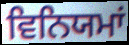
ਵਿਨਿਯਮਾਂ